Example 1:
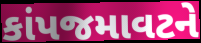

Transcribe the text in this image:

કાંપજમાવટને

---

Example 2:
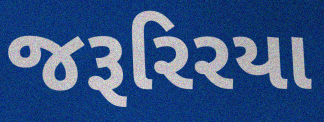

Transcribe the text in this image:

જરૂરિરયા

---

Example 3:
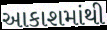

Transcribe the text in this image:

આકાશમાંથી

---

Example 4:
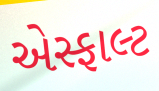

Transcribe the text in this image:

એસ્ફાલ્ટ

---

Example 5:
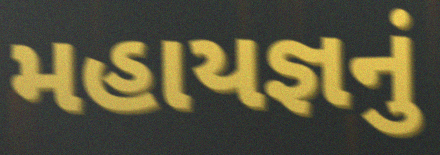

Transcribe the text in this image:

મહાયજ્ઞનું